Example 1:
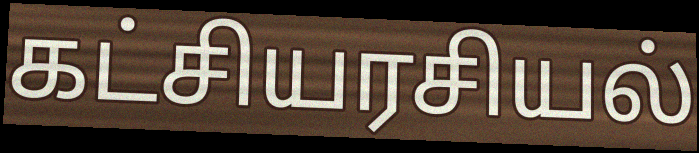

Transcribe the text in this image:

கட்சியரசியல்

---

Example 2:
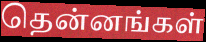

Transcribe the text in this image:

தென்னங்கள்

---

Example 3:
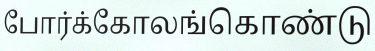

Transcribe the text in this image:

போர்க்கோலங்கொண்டு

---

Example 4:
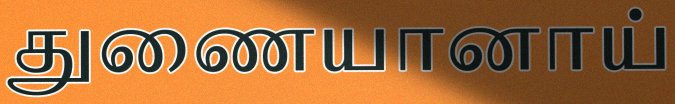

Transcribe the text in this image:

துணையானாய்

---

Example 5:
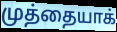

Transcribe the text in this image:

முத்தையாக்